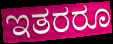
ಇತರರೂ